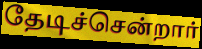
தேடிச்சென்றார்